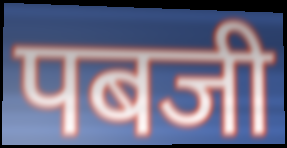
पबजी